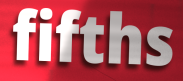
fifths